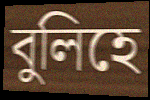
বুলিহে